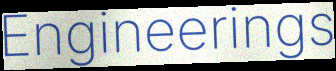
Engineerings